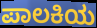
ಪಾಲಕಿಯ